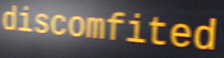
discomfited